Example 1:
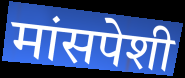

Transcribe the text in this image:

मांसपेशी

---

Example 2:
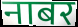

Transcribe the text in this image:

नाबर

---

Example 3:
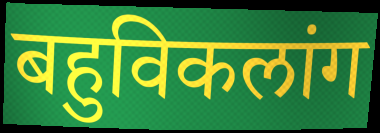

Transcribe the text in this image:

बहुविकलांग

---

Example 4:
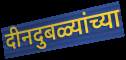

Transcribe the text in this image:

दीनदुबळ्यांच्या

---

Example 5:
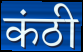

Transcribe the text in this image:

कंठी